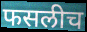
फसलीच